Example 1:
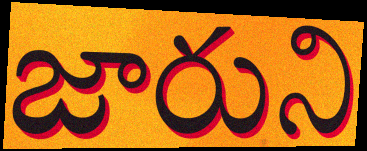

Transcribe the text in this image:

జారుని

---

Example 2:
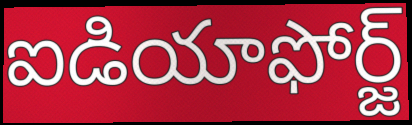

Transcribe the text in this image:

ఐడియాఫోర్జ్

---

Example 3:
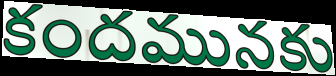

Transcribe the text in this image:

కందమునకు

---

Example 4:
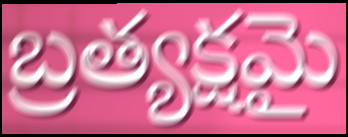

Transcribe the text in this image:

బ్రత్యక్షమై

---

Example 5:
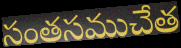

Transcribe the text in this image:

సంతసముచేత